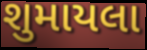
શુમાયલા